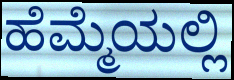
ಹೆಮ್ಮೆಯಲ್ಲಿ